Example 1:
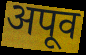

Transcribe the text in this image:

अपूव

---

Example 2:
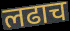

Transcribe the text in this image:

लढाच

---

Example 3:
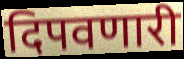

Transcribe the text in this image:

दिपवणारी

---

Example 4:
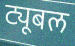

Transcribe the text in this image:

ट्यूबल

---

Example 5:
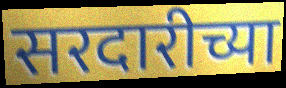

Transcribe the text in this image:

सरदारीच्या